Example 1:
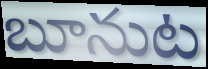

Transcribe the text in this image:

బూనుట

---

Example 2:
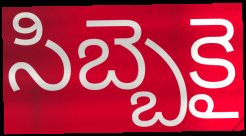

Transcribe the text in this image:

సిబ్బెకై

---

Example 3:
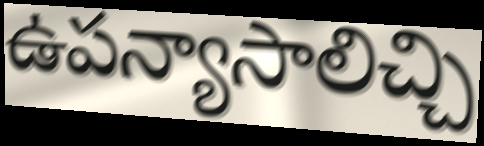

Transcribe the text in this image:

ఉపన్యాసాలిచ్చి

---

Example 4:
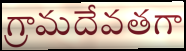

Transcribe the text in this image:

గ్రామదేవతగా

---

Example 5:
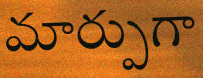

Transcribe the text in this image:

మార్పుగా